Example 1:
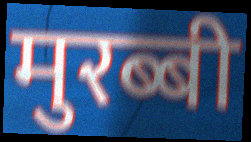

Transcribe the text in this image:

मुरब्बी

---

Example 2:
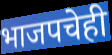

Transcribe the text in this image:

भाजपचेही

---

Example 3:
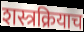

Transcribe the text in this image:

शस्त्रक्रियाच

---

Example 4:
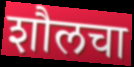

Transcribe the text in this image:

शौलचा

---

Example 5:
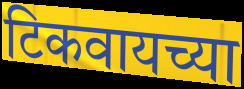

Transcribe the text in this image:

टिकवायच्या